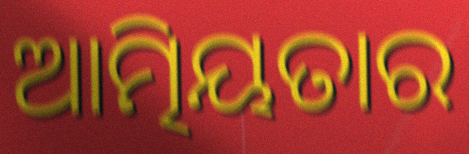
ଆତ୍ମିୟତାର